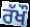
ਰੱਖੌ